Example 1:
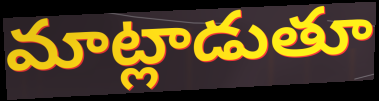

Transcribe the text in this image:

మాట్లాడుతూ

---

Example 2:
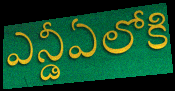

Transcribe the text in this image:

ఎన్డీఏలోకి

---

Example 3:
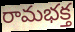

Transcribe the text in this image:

రామభక్త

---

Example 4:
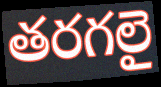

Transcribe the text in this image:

తరగలై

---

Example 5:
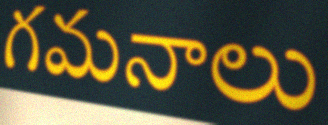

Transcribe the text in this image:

గమనాలు